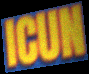
ICUN